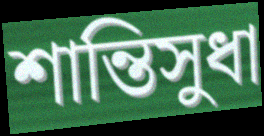
শান্তিসুধা